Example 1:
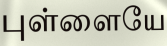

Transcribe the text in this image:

புள்ளையே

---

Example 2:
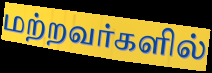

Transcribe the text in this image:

மற்றவர்களில்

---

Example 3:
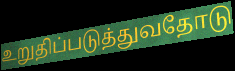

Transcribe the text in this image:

உறுதிப்படுத்துவதோடு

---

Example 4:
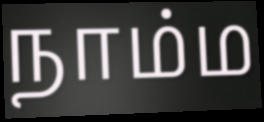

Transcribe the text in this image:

நாம்ம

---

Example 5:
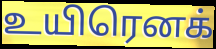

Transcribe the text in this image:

உயிரெனக்